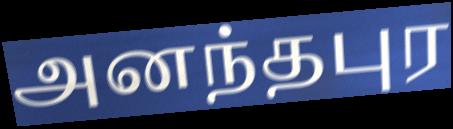
அனந்தபுர